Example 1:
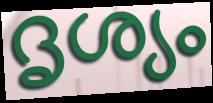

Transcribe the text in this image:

ദൃശ്യം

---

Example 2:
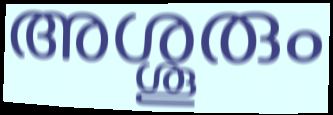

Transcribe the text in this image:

അശ്ശൂരും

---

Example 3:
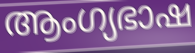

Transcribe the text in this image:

ആംഗ്യഭാഷ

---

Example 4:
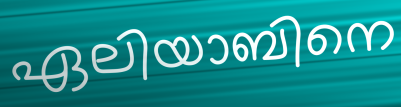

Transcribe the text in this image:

ഏലിയാബിനെ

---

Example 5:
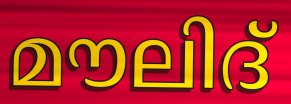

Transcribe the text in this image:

മൗലിദ്